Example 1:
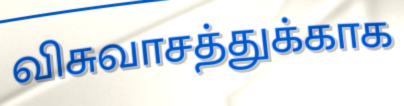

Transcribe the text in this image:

விசுவாசத்துக்காக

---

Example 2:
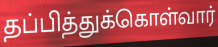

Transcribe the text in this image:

தப்பித்துக்கொள்வார்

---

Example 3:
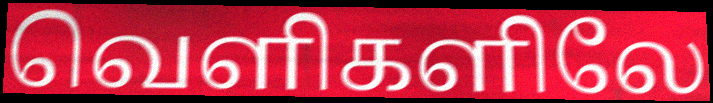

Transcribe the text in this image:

வெளிகளிலே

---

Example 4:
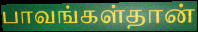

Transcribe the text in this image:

பாவங்கள்தான்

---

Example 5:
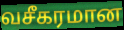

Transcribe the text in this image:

வசீகரமான